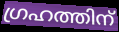
ഗ്രഹത്തിന്